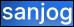
sanjog